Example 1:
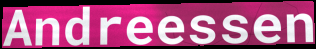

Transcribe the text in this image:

Andreessen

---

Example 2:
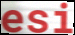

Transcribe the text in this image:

esi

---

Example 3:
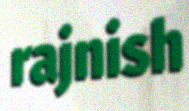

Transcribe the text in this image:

rajnish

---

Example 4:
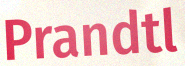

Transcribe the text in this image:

Prandtl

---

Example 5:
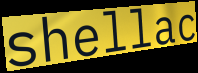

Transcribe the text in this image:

shellac